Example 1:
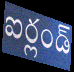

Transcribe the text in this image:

ఐర్లండ్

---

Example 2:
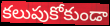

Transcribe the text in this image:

కలుపుకోకుండా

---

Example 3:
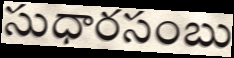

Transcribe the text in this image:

సుధారసంబు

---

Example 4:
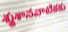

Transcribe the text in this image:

శ్మశానవాటికకు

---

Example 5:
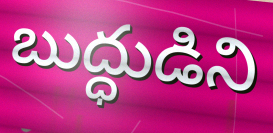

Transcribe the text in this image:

బుద్ధుడిని